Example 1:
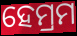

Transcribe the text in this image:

ହେମ୍ରମ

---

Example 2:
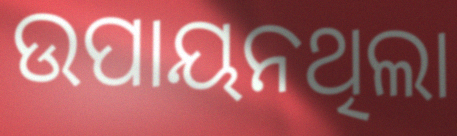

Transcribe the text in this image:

ଉପାୟନଥିଲା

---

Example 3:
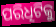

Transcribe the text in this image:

ପରିଧିଟିକୁ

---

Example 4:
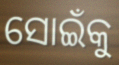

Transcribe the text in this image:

ସୋଇଁକୁ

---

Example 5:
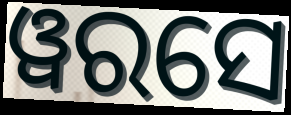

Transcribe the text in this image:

ୱରସେ